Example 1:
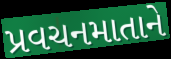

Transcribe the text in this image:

પ્રવચનમાતાને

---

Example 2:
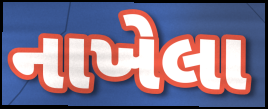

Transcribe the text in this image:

નાખેલા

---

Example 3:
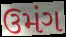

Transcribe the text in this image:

ઉમંગ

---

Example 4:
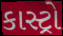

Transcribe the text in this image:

કાસ્ટ્રો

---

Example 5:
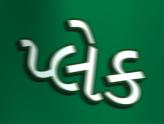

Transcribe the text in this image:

પ્લેક